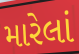
મારેલાં